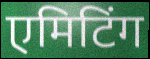
एमिटिंग